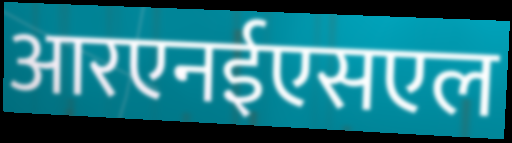
आरएनईएसएल